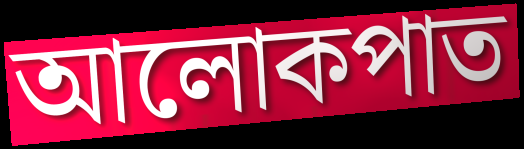
আলোকপাত